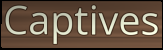
Captives